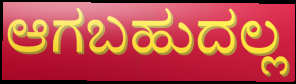
ಆಗಬಹುದಲ್ಲ